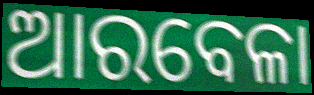
ଆରବେଳା